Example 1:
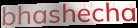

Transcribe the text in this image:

bhashecha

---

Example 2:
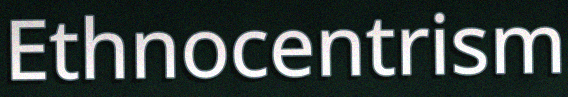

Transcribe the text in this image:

Ethnocentrism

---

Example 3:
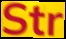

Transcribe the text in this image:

Str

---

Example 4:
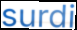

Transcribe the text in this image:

surdi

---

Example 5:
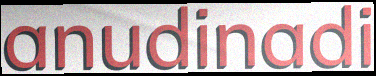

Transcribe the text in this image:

anudinadi